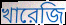
খারেজি